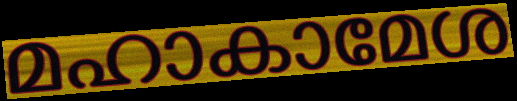
മഹാകാമേശ